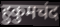
हुकुमचंद